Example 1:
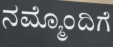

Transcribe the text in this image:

ನಮ್ಮೊಂದಿಗೆ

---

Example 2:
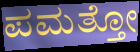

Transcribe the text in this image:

ಪಮತ್ತೋ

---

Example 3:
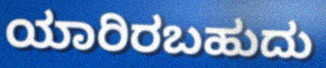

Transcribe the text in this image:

ಯಾರಿರಬಹುದು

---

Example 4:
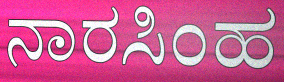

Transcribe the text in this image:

ನಾರಸಿಂಹ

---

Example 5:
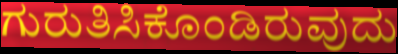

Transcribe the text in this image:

ಗುರುತಿಸಿಕೊಂಡಿರುವುದು